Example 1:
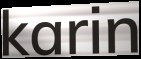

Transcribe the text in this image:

karin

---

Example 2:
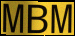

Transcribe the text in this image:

MBM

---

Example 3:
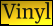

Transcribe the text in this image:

Vinyl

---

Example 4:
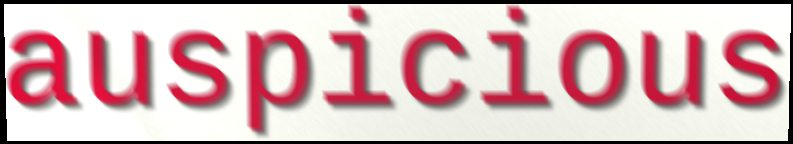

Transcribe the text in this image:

auspicious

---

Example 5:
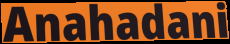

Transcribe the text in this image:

Anahadani